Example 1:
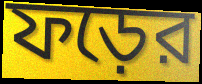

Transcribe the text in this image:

ফড়ের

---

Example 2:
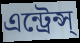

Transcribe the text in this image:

এন্ট্রেন্স্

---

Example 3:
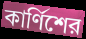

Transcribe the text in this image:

কার্ণিশের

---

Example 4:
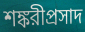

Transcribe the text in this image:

শঙ্করীপ্রসাদ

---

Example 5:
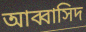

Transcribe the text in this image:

আব্বাসিদ